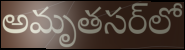
అమృతసర్‌లో